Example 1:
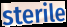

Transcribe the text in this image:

sterile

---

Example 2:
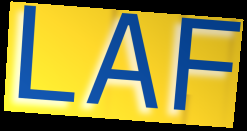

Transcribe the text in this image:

LAF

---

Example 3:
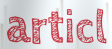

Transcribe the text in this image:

articl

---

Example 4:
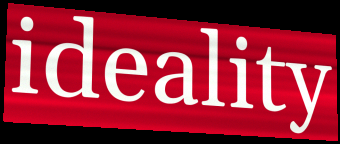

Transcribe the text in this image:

ideality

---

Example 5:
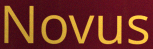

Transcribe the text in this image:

Novus